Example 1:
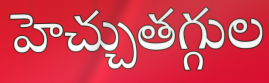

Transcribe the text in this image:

హెచ్చుతగ్గుల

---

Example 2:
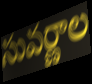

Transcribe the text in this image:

సువర్ణాల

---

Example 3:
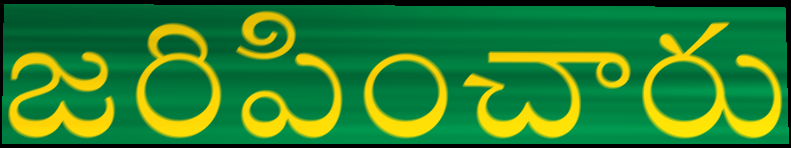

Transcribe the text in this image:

జరిపించారు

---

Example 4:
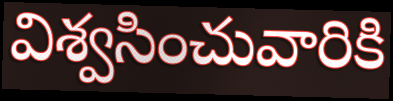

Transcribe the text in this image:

విశ్వసించువారికి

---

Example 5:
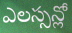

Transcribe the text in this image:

ఎలస్సన్లో